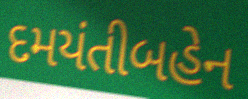
દમયંતીબહેન